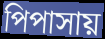
পিপাসায়